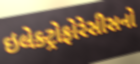
ઇલેક્ટ્રોફોરેસીસનો